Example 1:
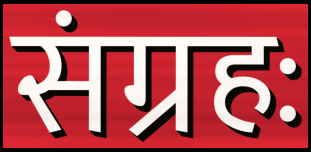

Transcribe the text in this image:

संग्रहः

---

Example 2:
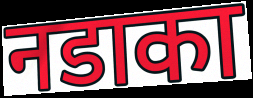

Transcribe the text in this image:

नडाका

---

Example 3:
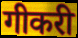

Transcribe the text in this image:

गीकरी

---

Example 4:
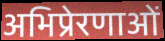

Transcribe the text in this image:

अभिप्रेरणाओं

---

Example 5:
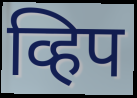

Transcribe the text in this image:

व्हिप